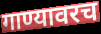
गाण्यावरच